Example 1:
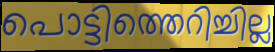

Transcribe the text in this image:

പൊട്ടിത്തെറിച്ചില്ല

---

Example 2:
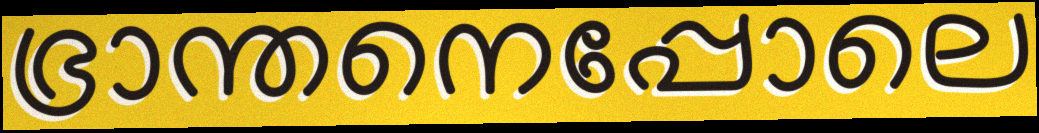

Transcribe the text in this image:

ഭ്രാന്തനെപ്പോലെ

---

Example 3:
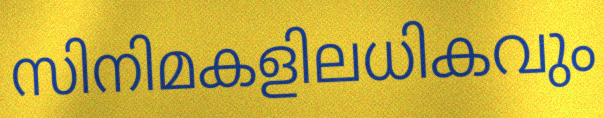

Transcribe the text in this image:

സിനിമകളിലധികവും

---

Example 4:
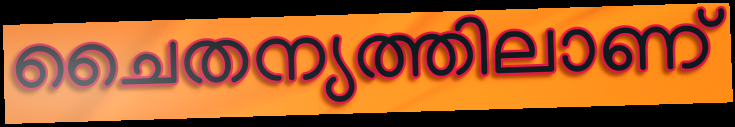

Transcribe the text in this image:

ചൈതന്യത്തിലാണ്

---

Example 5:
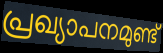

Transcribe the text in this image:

പ്രഖ്യാപനമുണ്ട്